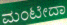
ಮಂಟೇದಾ